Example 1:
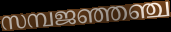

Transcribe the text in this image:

സമ്പജഞ്ഞഞ്ച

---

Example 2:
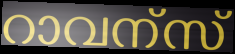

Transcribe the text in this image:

റാവന്സ്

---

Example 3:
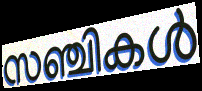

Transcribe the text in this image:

സഞ്ചികൾ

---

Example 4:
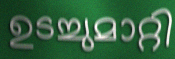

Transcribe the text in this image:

ഉടച്ചുമാറ്റി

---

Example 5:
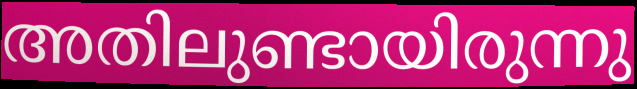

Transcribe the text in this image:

അതിലുണ്ടായിരുന്നു